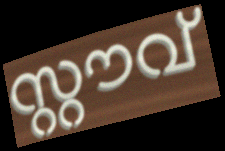
സ്റ്റൗവ്